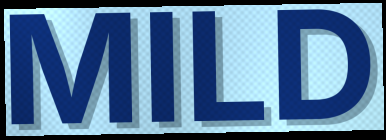
MILD